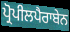
ਪ੍ਰੋਪੀਲਪੈਰਾਬੇਨ